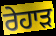
ਰੇਹਾੜ